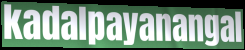
kadalpayanangal